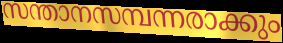
സന്താനസമ്പന്നരാക്കും